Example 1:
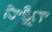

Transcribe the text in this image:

సాక్షిగా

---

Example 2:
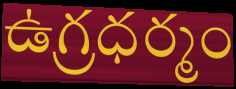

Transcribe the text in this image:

ఉగ్రధర్మం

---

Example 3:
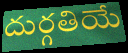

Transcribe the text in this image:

దుర్గతియే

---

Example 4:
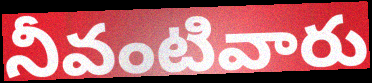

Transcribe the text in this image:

నీవంటివారు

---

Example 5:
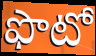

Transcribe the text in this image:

ఫొటో